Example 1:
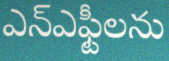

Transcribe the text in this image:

ఎన్ఎఫ్టీలను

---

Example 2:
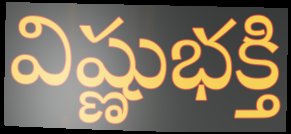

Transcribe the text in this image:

విష్ణుభక్తి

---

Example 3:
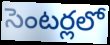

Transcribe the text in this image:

సెంటర్లలో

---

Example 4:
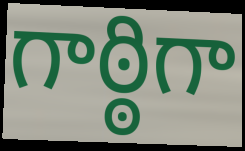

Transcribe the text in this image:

గాఠ్ఠిగా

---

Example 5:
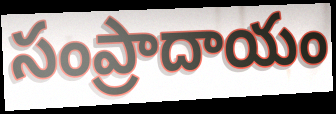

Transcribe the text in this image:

సంప్రాదాయం